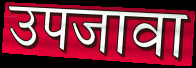
उपजावा